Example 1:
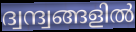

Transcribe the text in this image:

ദ്വന്ദ്വങ്ങളിൽ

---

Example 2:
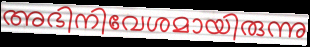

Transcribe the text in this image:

അഭിനിവേശമായിരുന്നു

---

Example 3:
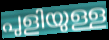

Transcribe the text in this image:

പുളിയുള്ള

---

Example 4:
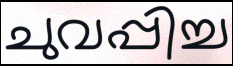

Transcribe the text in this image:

ചുവപ്പിച്ച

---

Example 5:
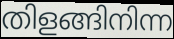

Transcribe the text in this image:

തിളങ്ങിനിന്ന